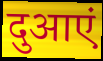
दुआएं